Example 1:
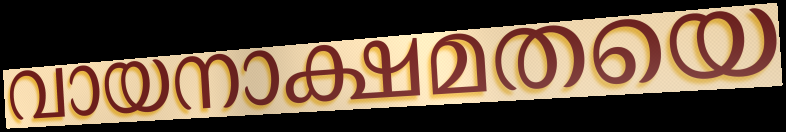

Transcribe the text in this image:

വായനാക്ഷമതയെ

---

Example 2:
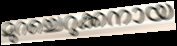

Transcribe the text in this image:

മുറച്ചെറുക്കനായ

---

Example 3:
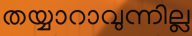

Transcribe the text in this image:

തയ്യാറാവുന്നില്ല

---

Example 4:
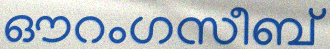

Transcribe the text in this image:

ഔറംഗസീബ്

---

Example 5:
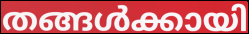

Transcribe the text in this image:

തങ്ങൾക്കായി